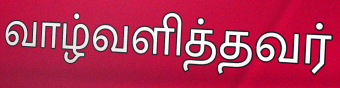
வாழ்வளித்தவர்